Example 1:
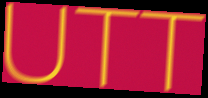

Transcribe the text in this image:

UTT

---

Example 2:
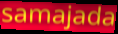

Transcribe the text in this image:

samajada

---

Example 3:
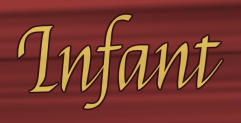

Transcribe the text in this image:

Infant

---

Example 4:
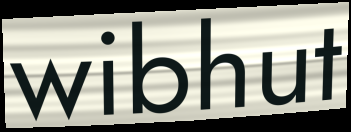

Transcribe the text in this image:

wibhut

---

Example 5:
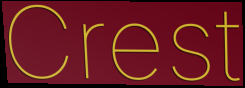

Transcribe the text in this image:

Crest